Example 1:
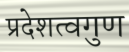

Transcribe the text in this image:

प्रदेशत्वगुण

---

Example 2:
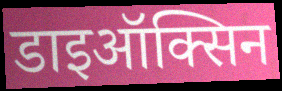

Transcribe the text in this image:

डाइऑक्सिन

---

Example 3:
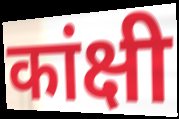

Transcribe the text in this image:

कांक्षी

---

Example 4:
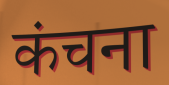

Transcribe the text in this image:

कंचना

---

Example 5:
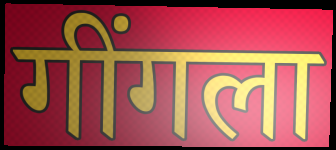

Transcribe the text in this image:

गींगला